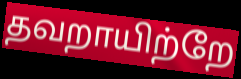
தவறாயிற்றே